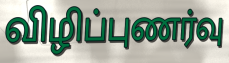
விழிப்புணர்வு